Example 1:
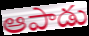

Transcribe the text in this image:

ఆపాడు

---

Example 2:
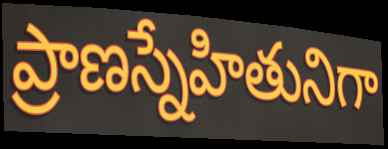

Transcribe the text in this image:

ప్రాణస్నేహితునిగా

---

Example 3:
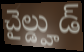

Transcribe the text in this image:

చైల్డ్హుడ్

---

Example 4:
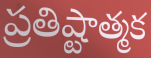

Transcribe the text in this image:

ప్రతిష్టాత్మక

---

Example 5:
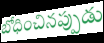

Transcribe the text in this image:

బోధించినప్పుడు